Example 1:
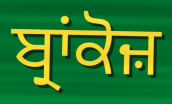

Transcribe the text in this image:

ਬ੍ਰਾਂਕੋਜ਼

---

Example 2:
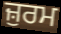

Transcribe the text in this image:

ਜ਼ੁਰਮ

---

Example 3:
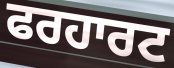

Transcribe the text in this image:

ਫਰਹਾਰਟ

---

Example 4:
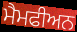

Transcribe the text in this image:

ਮੈਮਫੀਅਨ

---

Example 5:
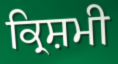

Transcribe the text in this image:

ਕ੍ਰਿਸ਼ਮੀ